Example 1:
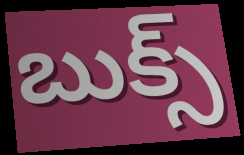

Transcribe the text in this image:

బుక్స్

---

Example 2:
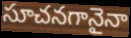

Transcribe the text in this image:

సూచనగానైనా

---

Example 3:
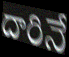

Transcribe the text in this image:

దారినే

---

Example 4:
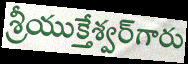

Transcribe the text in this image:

శ్రీయుక్తేశ్వర్‌గారు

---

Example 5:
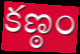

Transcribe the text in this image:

కణ్ఠం